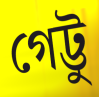
গেট্টু